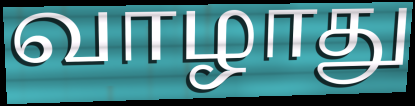
வாழாது